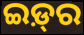
ଇଡ଼୍‍ର